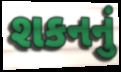
શકનનું